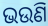
ଭଉଣି